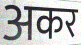
अकर